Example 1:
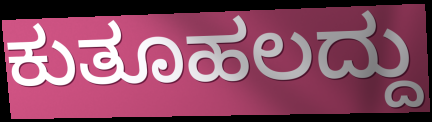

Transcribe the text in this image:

ಕುತೂಹಲದ್ದು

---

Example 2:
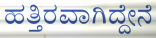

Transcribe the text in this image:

ಹತ್ತಿರವಾಗಿದ್ದೇನೆ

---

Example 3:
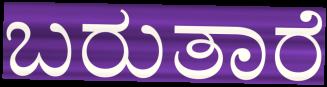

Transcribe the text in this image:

ಬರುತಾರೆ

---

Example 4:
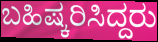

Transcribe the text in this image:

ಬಹಿಷ್ಕರಿಸಿದ್ದರು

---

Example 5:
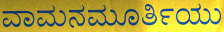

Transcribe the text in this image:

ವಾಮನಮೂರ್ತಿಯು